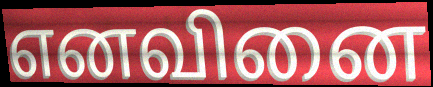
எனவினை